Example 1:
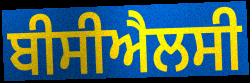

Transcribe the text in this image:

ਬੀਸੀਐਲਸੀ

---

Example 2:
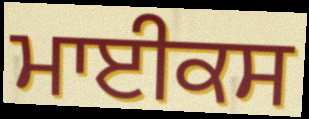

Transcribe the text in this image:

ਮਾਈਕਸ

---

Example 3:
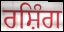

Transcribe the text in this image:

ਰਸ਼ਿੰਗ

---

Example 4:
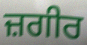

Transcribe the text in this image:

ਜ਼ਗੀਰ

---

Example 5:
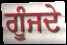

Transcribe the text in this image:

ਗੂੰਜਦੇ